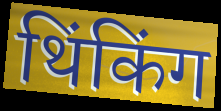
थिंकिंग